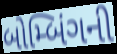
બોમ્બિંગની